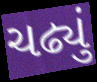
ચઢ્યું